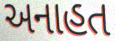
અનાહત